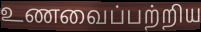
உணவைப்பற்றிய